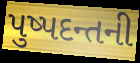
પુષ્પદન્તની